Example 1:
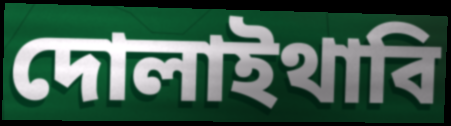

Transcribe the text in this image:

দোলাইথাবি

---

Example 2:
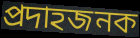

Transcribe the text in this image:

প্রদাহজনক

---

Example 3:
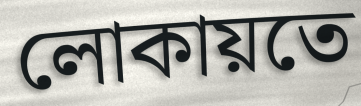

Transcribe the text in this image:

লোকায়তে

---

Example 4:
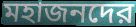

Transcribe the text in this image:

মহাজনদের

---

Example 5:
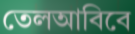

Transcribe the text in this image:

তেলআবিবে